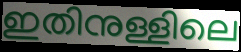
ഇതിനുള്ളിലെ